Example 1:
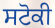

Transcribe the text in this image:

ਸਟੋਕੀ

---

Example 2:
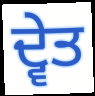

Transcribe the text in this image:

ਦ੍ਵੇਤ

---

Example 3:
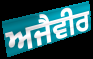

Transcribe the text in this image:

ਅਜੈਵੀਰ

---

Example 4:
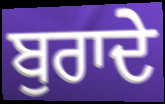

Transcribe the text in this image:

ਬੁਰਾਦੇ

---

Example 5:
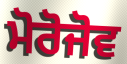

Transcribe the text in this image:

ਮੋਰੋਜੋਵ